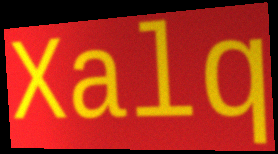
Xalq